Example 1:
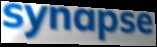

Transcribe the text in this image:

synapse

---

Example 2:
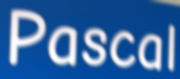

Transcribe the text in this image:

Pascal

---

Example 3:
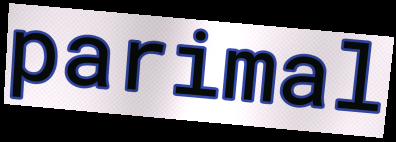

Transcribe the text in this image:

parimal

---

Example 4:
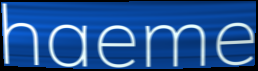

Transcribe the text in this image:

haeme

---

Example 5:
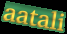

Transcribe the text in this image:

aatali